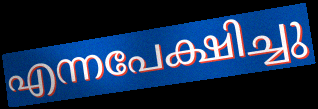
എന്നപേക്ഷിച്ചു